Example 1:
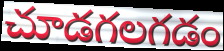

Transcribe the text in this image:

చూడగలగడం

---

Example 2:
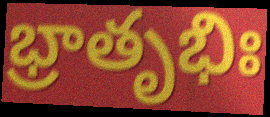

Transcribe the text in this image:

భ్రాతృభిః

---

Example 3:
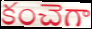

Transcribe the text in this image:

కంచెగా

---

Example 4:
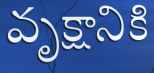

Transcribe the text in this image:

వృక్షానికి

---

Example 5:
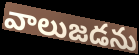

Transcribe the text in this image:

వాలుజడను